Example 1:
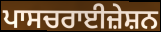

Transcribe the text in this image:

ਪਾਸਚਰਾਈਜ਼ੇਸ਼ਨ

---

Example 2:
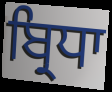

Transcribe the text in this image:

ਬ੍ਰਿਧਾ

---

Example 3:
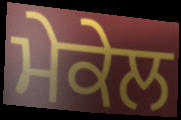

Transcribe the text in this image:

ਮੇਕੇਲ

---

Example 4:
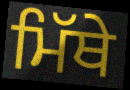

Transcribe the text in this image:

ਮਿੱਥੇ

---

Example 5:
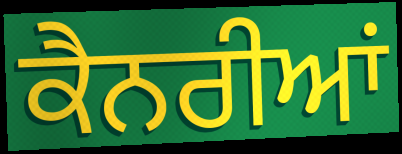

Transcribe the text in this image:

ਕੈਨਰੀਆਂ